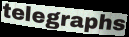
telegraphs